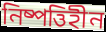
নিষ্পত্তিহীন